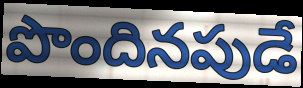
పొందినపుడే